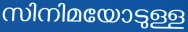
സിനിമയോടുള്ള